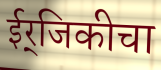
ईर्जिकीचा